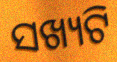
ସଖ୍ୟଟି